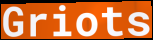
Griots